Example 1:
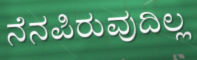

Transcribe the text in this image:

ನೆನಪಿರುವುದಿಲ್ಲ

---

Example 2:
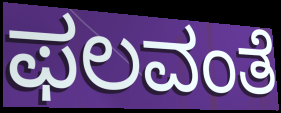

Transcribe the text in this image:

ಫಲವಂತೆ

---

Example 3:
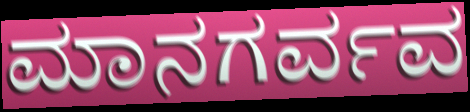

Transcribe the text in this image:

ಮಾನಗರ್ವವ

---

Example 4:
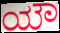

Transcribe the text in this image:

ಯೌ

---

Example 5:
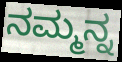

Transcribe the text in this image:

ನಮ್ಮನ್ನ